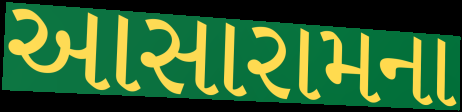
આસારામના